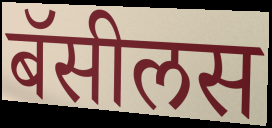
बॅसीलस